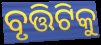
ବୃତ୍ତିଟିକୁ